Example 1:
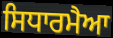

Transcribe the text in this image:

ਸਿਧਾਰਮੈਆ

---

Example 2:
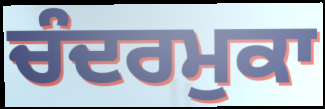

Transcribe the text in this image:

ਚੰਦਰਮੁਕਾ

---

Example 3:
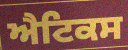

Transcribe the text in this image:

ਐਟਿਕਸ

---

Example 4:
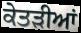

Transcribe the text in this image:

ਕੇਤੜੀਆਂ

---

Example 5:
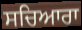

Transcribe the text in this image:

ਸਚਿਆਰਾ